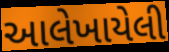
આલેખાયેલી